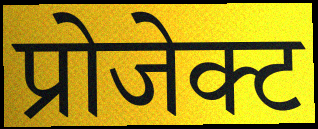
प्रोजेक्ट